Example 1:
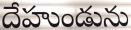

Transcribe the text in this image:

దేహుండును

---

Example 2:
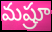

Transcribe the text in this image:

మష్రూ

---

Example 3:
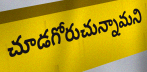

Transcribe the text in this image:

చూడగోరుచున్నామని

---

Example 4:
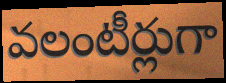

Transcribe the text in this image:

వలంటీర్లుగా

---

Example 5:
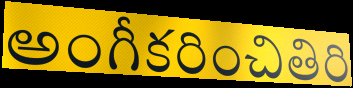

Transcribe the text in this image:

అంగీకరించితిరి